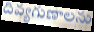
దివ్యగుణాలను